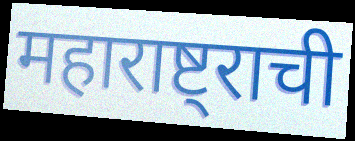
महाराष्ट्राची